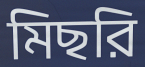
মিছরি